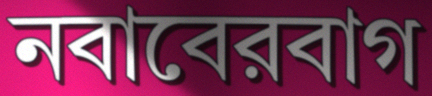
নবাবেরবাগ